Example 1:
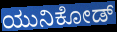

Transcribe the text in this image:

ಯುನಿಕೋಡ್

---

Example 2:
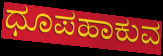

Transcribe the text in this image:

ಧೂಪಹಾಕುವ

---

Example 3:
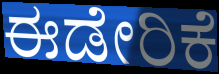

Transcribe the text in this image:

ಈಡೇರಿಕೆ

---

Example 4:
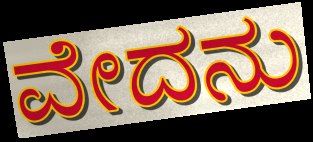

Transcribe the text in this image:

ವೇದನು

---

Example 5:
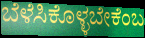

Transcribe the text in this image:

ಬೆಳೆಸಿಕೊಳ್ಳಬೇಕೆಂಬ